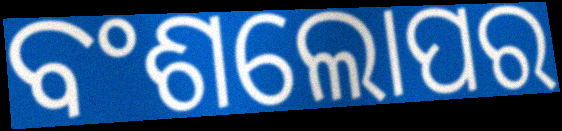
ବଂଶଲୋପର